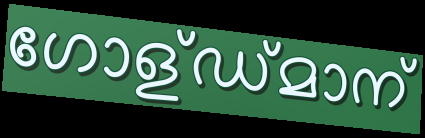
ഗോള്ഡ്മാന്